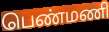
பெண்மணி